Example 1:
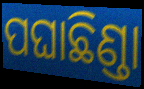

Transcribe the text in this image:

ପଘାଛିଣ୍ଡା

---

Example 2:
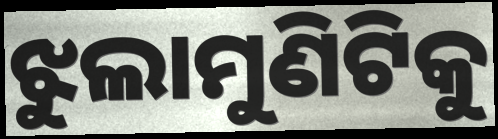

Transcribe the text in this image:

ଝୁଲାମୁଣିଟିକୁ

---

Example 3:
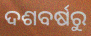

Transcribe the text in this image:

ଦଶବର୍ଷରୁ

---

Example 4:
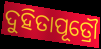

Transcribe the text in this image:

ଦୁହିତାପୂତ୍ରୌ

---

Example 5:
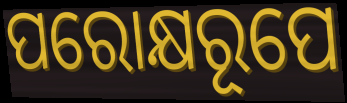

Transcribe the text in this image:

ପରୋକ୍ଷରୂପେ